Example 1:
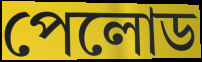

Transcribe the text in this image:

পেলোড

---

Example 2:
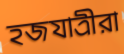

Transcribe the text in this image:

হজযাত্রীরা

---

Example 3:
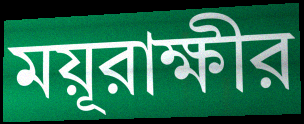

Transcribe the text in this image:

ময়ূরাক্ষীর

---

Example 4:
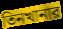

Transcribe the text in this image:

তিনখানার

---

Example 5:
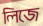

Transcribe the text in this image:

লিজে